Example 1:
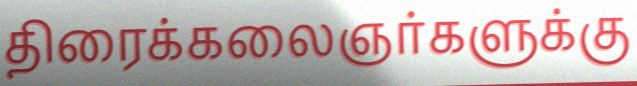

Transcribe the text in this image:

திரைக்கலைஞர்களுக்கு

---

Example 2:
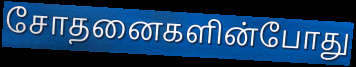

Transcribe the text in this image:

சோதனைகளின்போது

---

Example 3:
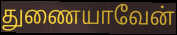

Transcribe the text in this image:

துணையாவேன்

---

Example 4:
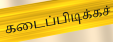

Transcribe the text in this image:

கடைப்பிடிக்கச்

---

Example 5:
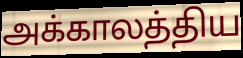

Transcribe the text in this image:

அக்காலத்திய